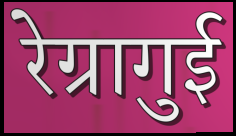
रेग्रागुई